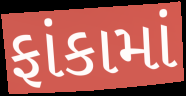
ફાંકામાં